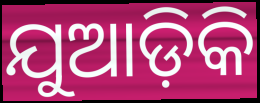
ଯୁଆଡ଼ିକି